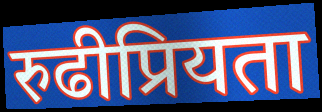
रुढीप्रियता